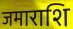
जमाराशि